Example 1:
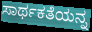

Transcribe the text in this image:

ಸಾರ್ಥಕತೆಯನ್ನ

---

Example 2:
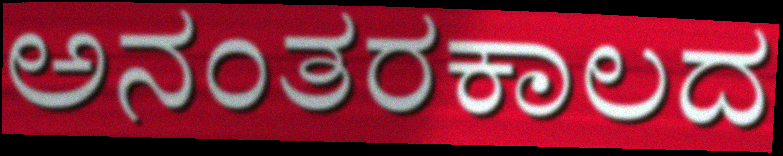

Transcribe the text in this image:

ಅನಂತರಕಾಲದ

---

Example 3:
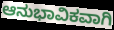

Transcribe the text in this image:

ಆನುಭಾವಿಕವಾಗಿ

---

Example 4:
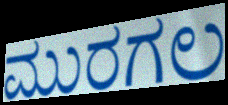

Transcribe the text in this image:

ಮುರಗಲ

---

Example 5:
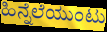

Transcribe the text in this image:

ಹಿನ್ನೆಲೆಯುಂಟು